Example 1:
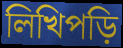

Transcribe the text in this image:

লিখিপড়ি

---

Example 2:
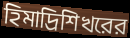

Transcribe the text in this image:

হিমাদ্রিশিখরের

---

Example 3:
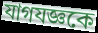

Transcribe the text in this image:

যাগযজ্ঞকে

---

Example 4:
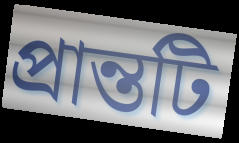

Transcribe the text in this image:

প্রান্তটি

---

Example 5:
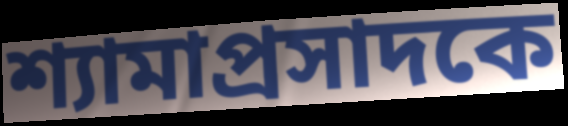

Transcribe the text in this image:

শ্যামাপ্রসাদকে